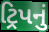
ટ્રિપનું